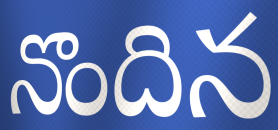
నొందిన